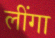
लींगा